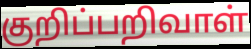
குறிப்பறிவாள்